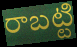
రాబట్టి